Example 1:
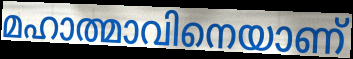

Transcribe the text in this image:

മഹാത്മാവിനെയാണ്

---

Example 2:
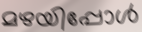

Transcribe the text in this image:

മഴയിപ്പോൾ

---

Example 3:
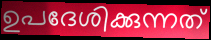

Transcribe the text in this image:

ഉപദേശിക്കുന്നത്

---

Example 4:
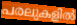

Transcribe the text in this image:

പരലുകളിൽ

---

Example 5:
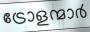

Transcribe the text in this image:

ട്രോളന്മാർ